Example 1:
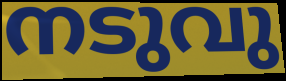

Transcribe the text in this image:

നടുവു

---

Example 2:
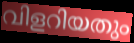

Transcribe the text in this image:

വിളറിയതും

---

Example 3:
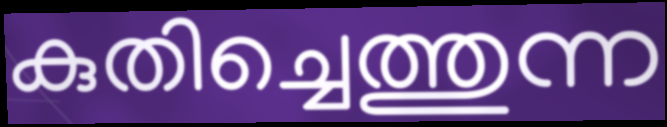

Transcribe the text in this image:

കുതിച്ചെത്തുന്ന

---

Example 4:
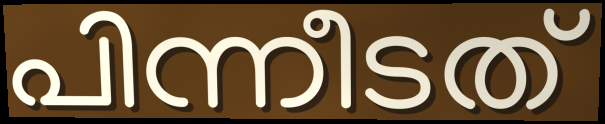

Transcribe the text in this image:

പിന്നീടത്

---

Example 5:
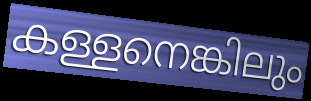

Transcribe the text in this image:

കള്ളനെങ്കിലും